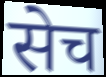
सेच